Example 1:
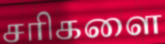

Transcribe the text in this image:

சரிகளை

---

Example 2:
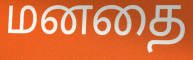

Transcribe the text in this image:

மனதை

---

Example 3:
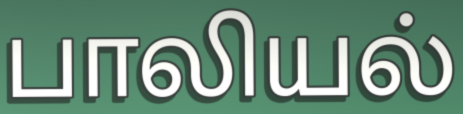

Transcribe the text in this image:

பாலியல்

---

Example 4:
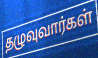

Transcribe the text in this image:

தழுவுவார்கள்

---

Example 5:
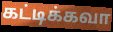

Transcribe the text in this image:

கட்டிக்கவா